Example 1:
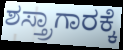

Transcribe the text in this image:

ಶಸ್ತ್ರಾಗಾರಕ್ಕೆ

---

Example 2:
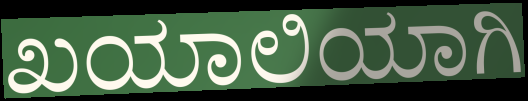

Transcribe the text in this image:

ಖಯಾಲಿಯಾಗಿ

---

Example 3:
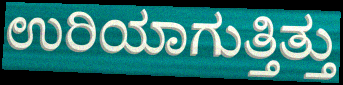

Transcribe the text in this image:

ಉರಿಯಾಗುತ್ತಿತ್ತು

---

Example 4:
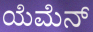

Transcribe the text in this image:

ಯೆಮೆನ್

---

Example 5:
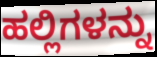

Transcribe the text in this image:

ಹಲ್ಲಿಗಳನ್ನು